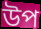
উপ